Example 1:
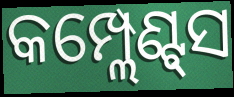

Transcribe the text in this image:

କମ୍ପ୍ଲେଣ୍ଟ୍‌ସ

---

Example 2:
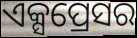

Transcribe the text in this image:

ଏକ୍ସପ୍ରେସର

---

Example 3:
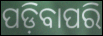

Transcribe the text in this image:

ପଡ଼ିବାପରି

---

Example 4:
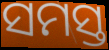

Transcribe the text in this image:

ସମସ୍ତ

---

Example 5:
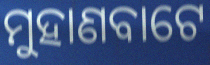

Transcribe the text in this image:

ମୁହାଣବାଟେ